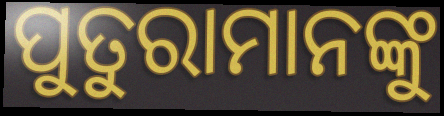
ପୁତୁରାମାନଙ୍କୁ